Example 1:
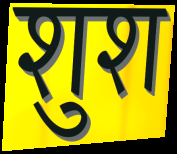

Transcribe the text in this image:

शुश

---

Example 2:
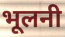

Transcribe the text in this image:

भूलनी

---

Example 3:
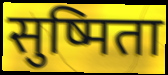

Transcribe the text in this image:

सुष्मिता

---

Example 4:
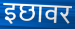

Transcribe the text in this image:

इछावर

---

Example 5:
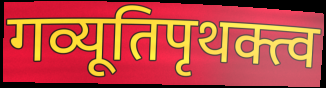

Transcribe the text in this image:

गव्यूतिपृथक्त्व